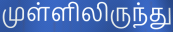
முள்ளிலிருந்து